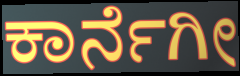
ಕಾರ್ನೆಗೀ